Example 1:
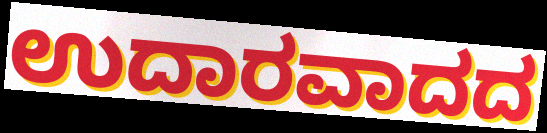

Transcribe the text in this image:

ಉದಾರವಾದದ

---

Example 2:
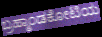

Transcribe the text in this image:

ಬ್ರಹ್ಮಾಂಡಕೋಟಿಯ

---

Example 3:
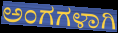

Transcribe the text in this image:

ಅಂಗಗಳಾಗಿ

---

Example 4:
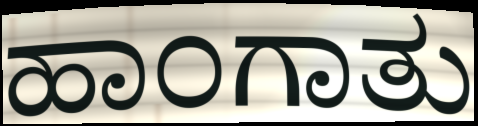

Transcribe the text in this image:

ಹಾಂಗಾತು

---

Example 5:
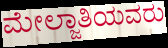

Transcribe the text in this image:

ಮೇಲ್ಜಾತಿಯವರು